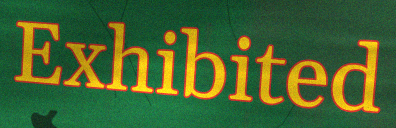
Exhibited